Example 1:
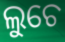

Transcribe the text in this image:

ଲୁଚେ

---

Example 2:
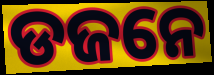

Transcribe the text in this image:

ଡଜନେ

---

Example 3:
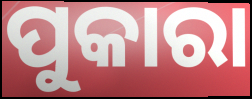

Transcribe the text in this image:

ପୁକାରା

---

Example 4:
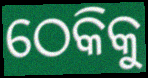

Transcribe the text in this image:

ଠେକିକୁ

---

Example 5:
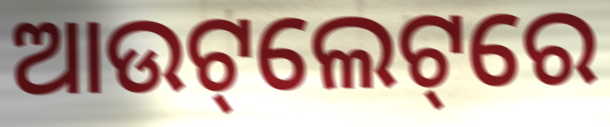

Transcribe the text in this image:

ଆଉଟ୍‌ଲେଟ୍‌ରେ